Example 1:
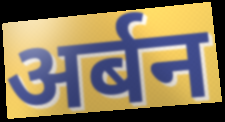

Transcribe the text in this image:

अर्बन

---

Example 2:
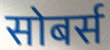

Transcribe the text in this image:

सोबर्स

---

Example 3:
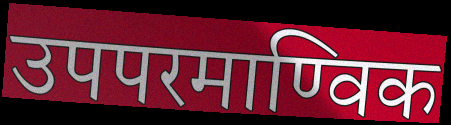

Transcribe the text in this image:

उपपरमाण्विक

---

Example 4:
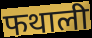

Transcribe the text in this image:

फथाली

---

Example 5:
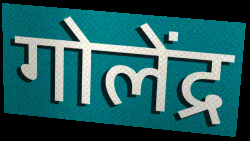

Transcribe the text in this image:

गोलेंद्र